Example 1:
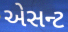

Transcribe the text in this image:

એસન્ટ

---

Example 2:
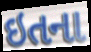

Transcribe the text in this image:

ઇતના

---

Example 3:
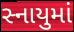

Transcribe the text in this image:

સ્નાયુમાં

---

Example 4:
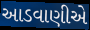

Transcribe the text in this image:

આડવાણીએ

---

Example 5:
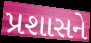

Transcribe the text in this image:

પ્રશાસને